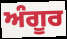
ਅੰਗੂਰ